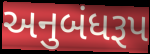
અનુબંધરૂપ